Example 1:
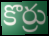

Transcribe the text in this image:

కొర్రు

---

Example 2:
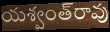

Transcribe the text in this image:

యశ్వంత్‌రావు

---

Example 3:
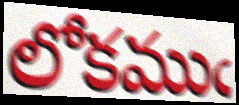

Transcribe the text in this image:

లోకముఁ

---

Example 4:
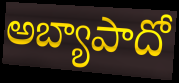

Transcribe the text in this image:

అబ్యాపాదో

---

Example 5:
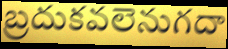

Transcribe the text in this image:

బ్రదుకవలెనుగదా